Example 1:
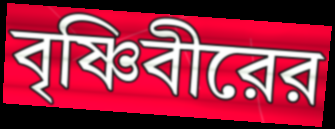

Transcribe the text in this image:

বৃষ্ণিবীরের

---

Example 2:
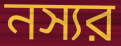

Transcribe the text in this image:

নস্যর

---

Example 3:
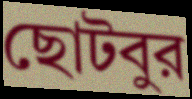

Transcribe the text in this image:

ছোটবুর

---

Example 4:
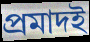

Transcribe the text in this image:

প্রমাদই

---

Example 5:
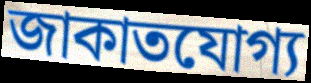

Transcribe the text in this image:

জাকাতযোগ্য